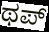
ಥಪ್